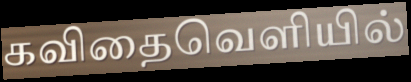
கவிதைவெளியில்